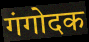
गंगोदक